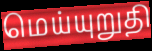
மெய்யுறுதி